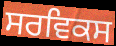
ਸਰਵਿਕਸ